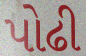
પોઢી